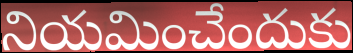
నియమించేందుకు